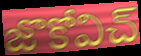
జొకోవిచ్